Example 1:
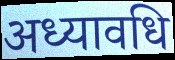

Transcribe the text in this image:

अध्यावधि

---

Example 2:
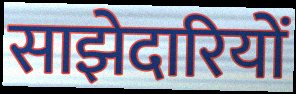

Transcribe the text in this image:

साझेदारियों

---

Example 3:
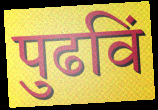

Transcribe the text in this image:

पुढविं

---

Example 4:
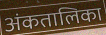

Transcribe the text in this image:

अंकतालिका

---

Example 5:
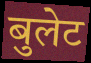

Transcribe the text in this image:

बुलेट